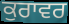
ਕੁਰਾਵਰ